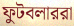
ফুটবলাররা